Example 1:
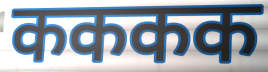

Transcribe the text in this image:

कककक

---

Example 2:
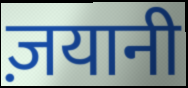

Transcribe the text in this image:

ज़यानी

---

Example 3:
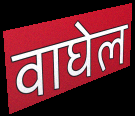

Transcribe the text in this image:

वाघेल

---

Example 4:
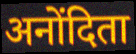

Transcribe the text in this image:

अनोंदिता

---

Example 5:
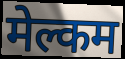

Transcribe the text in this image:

मेल्कम